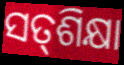
ସତ୍‌ଶିକ୍ଷା